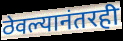
ठेवल्यानंतरही